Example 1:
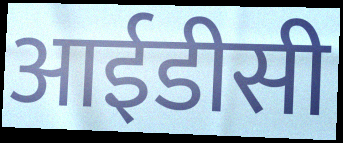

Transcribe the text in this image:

आईडीसी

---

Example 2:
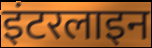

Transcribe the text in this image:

इंटरलाइन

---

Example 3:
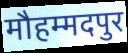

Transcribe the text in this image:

मौहम्मदपुर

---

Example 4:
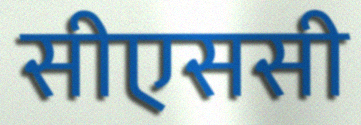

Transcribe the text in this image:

सीएससी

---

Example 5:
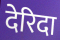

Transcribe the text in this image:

देरिदा